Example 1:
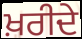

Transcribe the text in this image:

ਖ਼ਰੀਦੇ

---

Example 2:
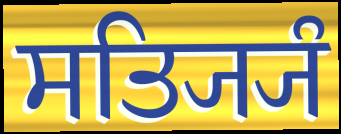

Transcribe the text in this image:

ਸਤ੍ਯ੍ਯਿੰ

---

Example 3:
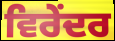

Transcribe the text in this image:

ਵਿਰੇਂਦਰ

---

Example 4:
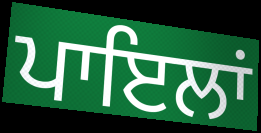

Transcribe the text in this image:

ਪਾਇਲਾਂ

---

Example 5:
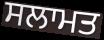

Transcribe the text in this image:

ਸਲਾਮਤ